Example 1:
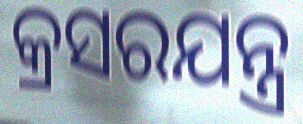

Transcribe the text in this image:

କ୍ରସରଯନ୍ତ୍ର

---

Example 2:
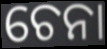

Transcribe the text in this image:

ଚେନା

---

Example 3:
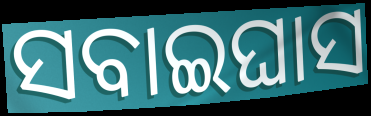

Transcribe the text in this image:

ସବାଇଘାସ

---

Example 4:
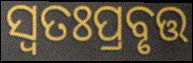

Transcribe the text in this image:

ସ୍ୱତଃପ୍ରବୃତ୍ତ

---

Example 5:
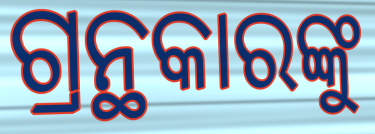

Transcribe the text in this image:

ଗ୍ରନ୍ଥକାରଙ୍କୁ